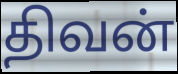
திவன்